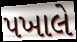
પખાલે